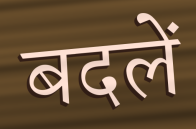
बदलें